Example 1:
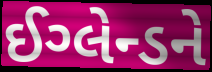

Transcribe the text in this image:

ઈગ્લેન્ડને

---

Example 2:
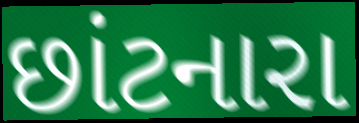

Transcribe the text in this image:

છાંટનારા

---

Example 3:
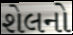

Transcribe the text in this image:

શેલનો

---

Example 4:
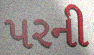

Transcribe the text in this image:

પરની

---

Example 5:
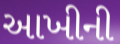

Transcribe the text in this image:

આખીની